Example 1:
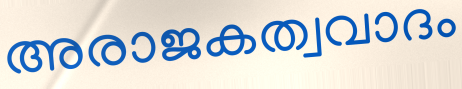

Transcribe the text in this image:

അരാജകത്വവാദം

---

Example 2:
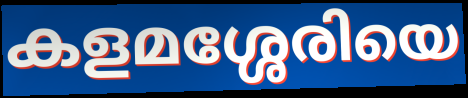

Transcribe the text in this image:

കളമശ്ശേരിയെ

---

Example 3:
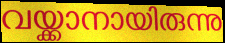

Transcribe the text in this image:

വയ്ക്കാനായിരുന്നു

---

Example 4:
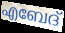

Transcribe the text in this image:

എബേദ്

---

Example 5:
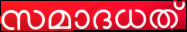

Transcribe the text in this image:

സമാദധത്